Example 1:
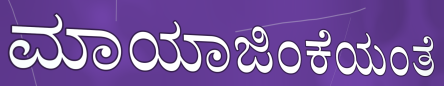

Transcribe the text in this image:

ಮಾಯಾಜಿಂಕೆಯಂತೆ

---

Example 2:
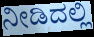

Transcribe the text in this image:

ನೀಡಿದಲ್ಲಿ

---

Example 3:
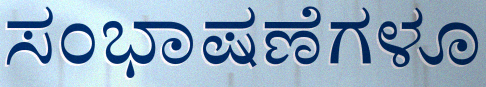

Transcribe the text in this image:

ಸಂಭಾಷಣೆಗಳೂ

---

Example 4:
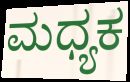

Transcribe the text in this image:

ಮಧ್ಯಕ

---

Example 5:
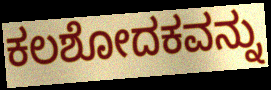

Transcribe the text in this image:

ಕಲಶೋದಕವನ್ನು